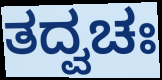
ತದ್ವಚಃ